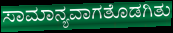
ಸಾಮಾನ್ಯವಾಗತೊಡಗಿತು